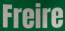
Freire